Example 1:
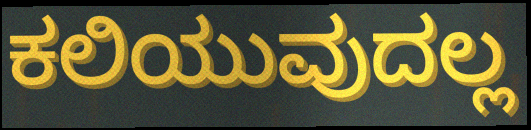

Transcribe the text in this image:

ಕಲಿಯುವುದಲ್ಲ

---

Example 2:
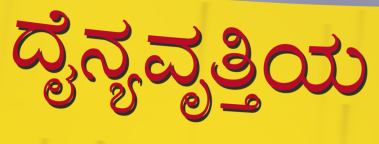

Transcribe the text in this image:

ದೈನ್ಯವೃತ್ತಿಯ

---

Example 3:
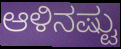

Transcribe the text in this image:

ಆಳಿನಷ್ಟು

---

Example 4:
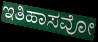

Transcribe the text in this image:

ಇತಿಹಾಸವೋ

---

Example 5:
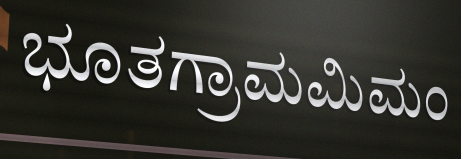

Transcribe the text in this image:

ಭೂತಗ್ರಾಮಮಿಮಂ